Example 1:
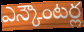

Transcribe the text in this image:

ఎన్కౌంటర్ల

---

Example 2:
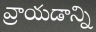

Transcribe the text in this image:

వ్రాయడాన్ని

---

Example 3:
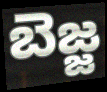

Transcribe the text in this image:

బెజ్జ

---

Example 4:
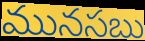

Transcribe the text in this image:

మునసబు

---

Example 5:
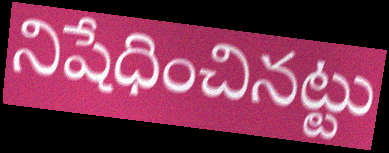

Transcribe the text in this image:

నిషేధించినట్టు